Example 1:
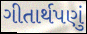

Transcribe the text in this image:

ગીતાર્થપણું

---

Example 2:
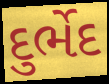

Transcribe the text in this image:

દુર્ભેદ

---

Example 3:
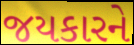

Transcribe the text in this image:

જયકારને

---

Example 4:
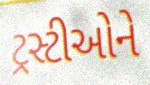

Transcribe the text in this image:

ટ્રસ્ટીઓને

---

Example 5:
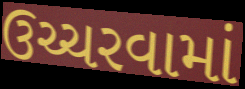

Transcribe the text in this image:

ઉચ્ચરવામાં